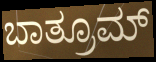
ಬಾತ್ರೂಮ್